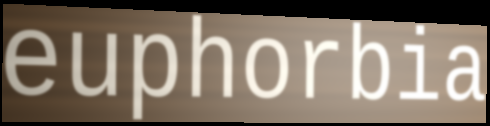
euphorbia